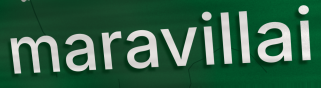
maravillai